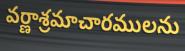
వర్ణాశ్రమాచారములను